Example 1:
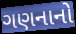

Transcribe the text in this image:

ગણનાનો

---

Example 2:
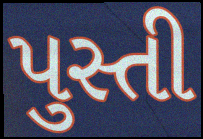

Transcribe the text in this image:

પુસ્તી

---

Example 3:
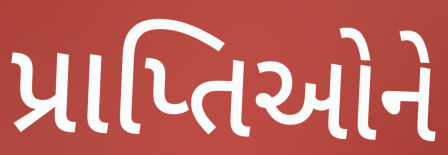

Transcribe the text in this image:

પ્રાપ્તિઓને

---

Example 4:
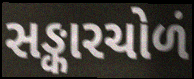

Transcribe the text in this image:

સઙ્કારચોળં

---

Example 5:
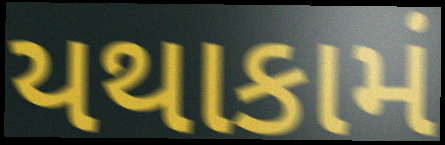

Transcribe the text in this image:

યથાકામં